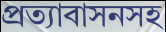
প্রত্যাবাসনসহ